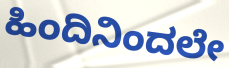
ಹಿಂದಿನಿಂದಲೇ